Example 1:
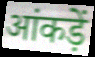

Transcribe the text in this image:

आंकड़ें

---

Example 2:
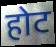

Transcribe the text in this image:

होट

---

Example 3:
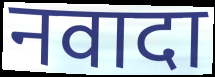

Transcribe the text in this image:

नवादा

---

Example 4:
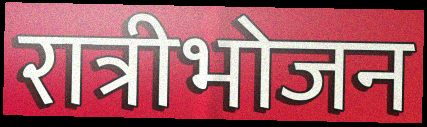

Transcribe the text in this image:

रात्रीभोजन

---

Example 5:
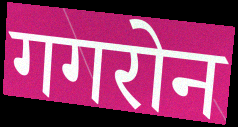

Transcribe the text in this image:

गगरोन